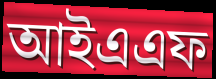
আইএএফ